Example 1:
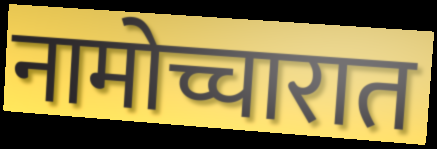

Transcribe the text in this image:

नामोच्चारात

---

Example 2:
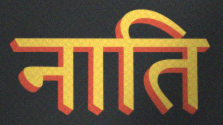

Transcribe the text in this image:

नाति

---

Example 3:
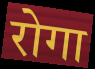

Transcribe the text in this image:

रोगा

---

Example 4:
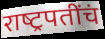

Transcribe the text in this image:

राष्ट्रपतींचं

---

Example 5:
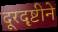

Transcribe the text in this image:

दूरदृष्टीने